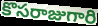
కొసరాజుగారి